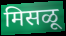
मिसळू